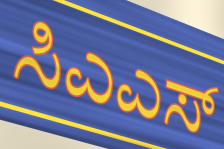
ಸಿಎಎಸ್